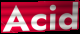
Acid